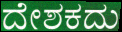
ದೇಶಕದು